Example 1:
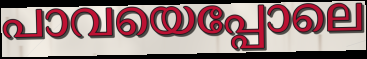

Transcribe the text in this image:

പാവയെപ്പോലെ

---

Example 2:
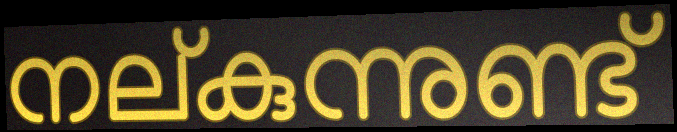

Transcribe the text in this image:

നല്കുന്നുണ്ട്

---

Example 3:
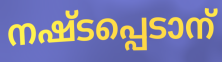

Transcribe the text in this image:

നഷ്ടപ്പെടാന്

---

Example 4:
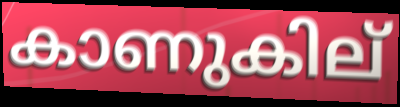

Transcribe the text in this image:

കാണുകില്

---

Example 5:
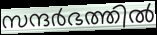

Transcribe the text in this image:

സന്ദർഭത്തിൽ